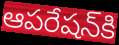
ఆపరేషన్‌కి